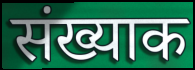
संख्याक